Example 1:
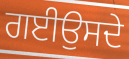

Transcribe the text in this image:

ਗਈਉਸਦੇ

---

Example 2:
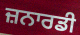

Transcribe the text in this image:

ਜ਼ਨਾਰਡੀ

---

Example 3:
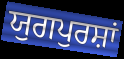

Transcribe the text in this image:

ਯੁਗਪੁਰਸ਼ਾਂ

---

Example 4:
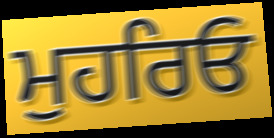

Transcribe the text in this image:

ਮੁਹਰਿਓ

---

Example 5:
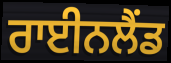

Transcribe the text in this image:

ਰਾਈਨਲੈਂਡ